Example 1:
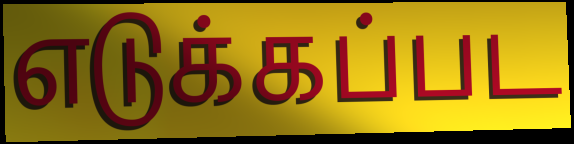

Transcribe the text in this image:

எடுக்கப்பட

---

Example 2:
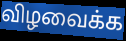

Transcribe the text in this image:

விழவைக்க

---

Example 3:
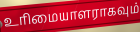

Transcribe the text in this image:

உரிமையாளராகவும்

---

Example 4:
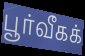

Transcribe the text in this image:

பூர்வீகக்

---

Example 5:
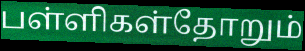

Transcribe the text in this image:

பள்ளிகள்தோறும்